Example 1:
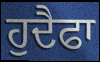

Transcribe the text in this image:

ਹੁਦੈਫਾ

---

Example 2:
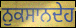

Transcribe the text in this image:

ਨੁਕਸਾਨਦੇਹ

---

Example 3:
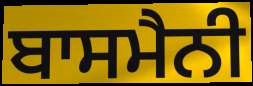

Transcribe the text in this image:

ਬਾਸਮੈਨੀ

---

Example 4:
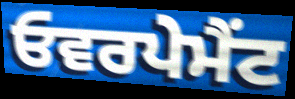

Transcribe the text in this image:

ਓਵਰਪੇਮੈਂਟ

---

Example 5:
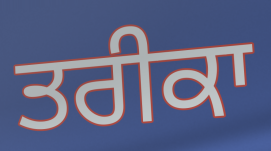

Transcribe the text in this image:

ਤਰੀਕਾ